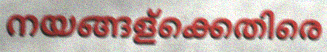
നയങ്ങള്ക്കെതിരെ